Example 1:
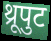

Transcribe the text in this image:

थ्रूपुट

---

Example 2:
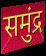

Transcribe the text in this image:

समुंद्र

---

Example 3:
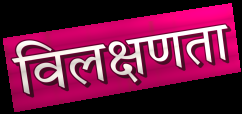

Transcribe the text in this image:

विलक्षणता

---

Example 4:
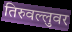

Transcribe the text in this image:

तिरुवल्लुवर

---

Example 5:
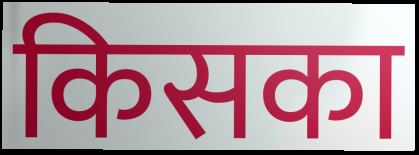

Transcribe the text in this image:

किसका